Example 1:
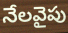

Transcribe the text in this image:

నేలవైపు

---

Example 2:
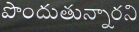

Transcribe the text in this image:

పొందుతున్నారని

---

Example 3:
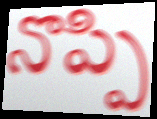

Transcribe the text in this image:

నొప్పి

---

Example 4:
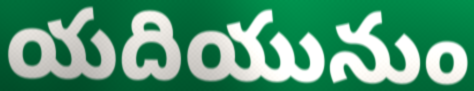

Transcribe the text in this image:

యదియునుం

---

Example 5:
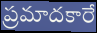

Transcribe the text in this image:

ప్రమాదకారే